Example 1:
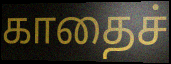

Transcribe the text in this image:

காதைச்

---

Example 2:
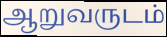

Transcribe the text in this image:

ஆறுவருடம்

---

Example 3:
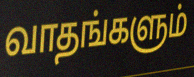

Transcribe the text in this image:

வாதங்களும்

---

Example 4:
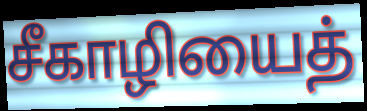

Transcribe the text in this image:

சீகாழியைத்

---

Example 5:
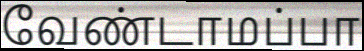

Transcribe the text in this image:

வேண்டாமப்பா